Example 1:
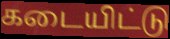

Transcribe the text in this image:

கடையிட்டு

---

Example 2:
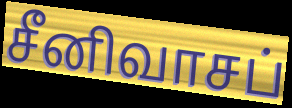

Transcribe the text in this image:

சீனிவாசப்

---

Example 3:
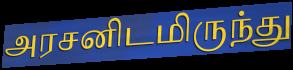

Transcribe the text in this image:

அரசனிடமிருந்து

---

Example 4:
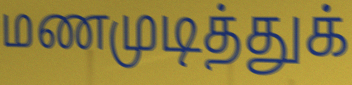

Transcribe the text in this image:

மணமுடித்துக்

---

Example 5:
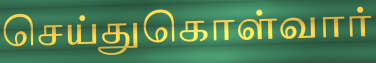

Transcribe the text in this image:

செய்துகொள்வார்